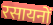
रसायनों